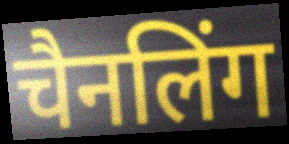
चैनलिंग